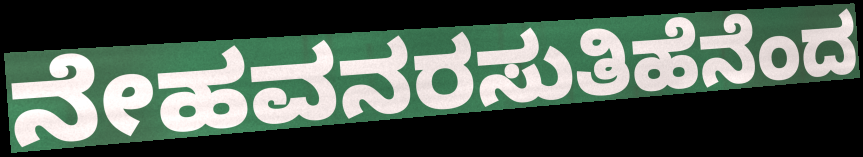
ನೇಹವನರಸುತಿಹೆನೆಂದ